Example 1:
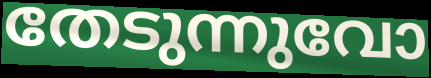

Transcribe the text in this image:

തേടുന്നുവോ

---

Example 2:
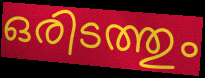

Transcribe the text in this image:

ഒരിടത്തും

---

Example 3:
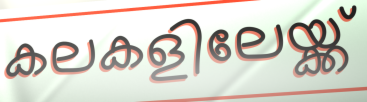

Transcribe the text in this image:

കലകളിലേയ്ക്ക്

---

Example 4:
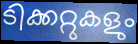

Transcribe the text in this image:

ടിക്കറ്റുകളും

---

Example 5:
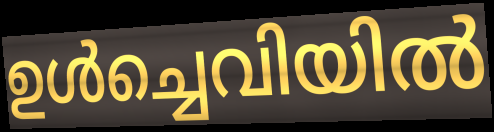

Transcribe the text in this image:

ഉൾച്ചെവിയിൽ